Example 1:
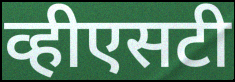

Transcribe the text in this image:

व्हीएसटी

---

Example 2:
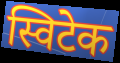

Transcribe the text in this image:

स्विटेक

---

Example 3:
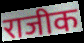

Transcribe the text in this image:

राजीक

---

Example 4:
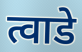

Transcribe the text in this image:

त्वाडे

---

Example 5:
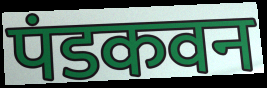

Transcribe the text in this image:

पंडकवन